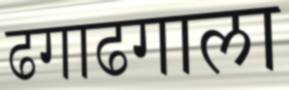
ढगाढगाला